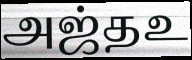
அஜ்தஉ